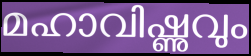
മഹാവിഷ്ണുവും